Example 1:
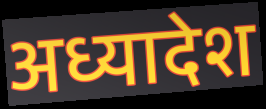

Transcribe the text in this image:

अध्यादेश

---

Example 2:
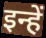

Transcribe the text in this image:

इन्हें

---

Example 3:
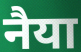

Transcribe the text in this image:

नैया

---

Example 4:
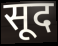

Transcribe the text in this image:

सूद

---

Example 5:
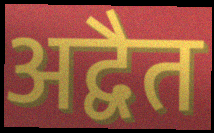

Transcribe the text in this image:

अद्वैत